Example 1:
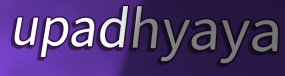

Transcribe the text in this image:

upadhyaya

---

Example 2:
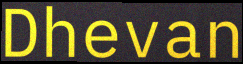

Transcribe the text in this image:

Dhevan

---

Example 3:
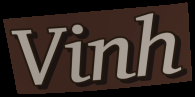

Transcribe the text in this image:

Vinh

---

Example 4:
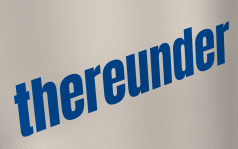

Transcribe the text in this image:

thereunder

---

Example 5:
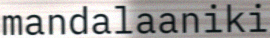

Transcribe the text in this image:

mandalaaniki